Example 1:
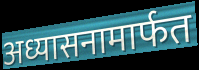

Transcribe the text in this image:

अध्यासनामार्फत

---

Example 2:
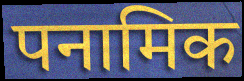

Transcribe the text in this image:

पनामिक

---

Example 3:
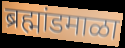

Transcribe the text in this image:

ब्रह्मांडमाळा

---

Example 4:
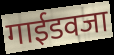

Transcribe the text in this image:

गाईडवजा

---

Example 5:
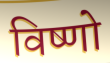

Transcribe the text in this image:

विष्णो